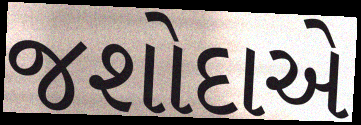
જશોદાએ